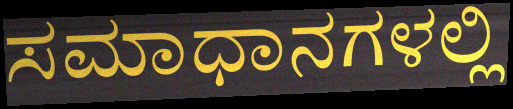
ಸಮಾಧಾನಗಳಲ್ಲಿ